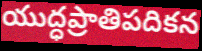
యుద్ధప్రాతిపదికన